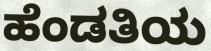
ಹೆಂಡತಿಯ